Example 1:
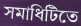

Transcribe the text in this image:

সমাধিটিতে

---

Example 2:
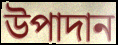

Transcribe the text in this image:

উপাদান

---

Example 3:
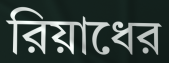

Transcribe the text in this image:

রিয়াধের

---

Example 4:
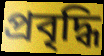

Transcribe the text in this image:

প্রবৃদ্ধি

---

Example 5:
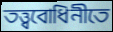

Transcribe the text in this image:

তত্ত্ববোধিনীতে